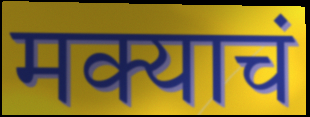
मक्याचं